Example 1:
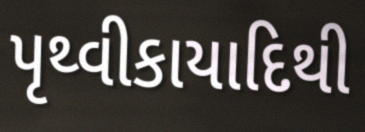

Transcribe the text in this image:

પૃથ્વીકાયાદિથી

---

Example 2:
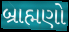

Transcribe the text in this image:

બ્રાહ્મણો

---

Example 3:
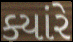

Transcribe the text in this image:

ક્યાંરે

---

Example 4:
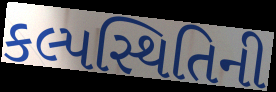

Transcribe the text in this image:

કલ્પસ્થિતિની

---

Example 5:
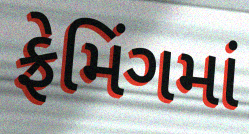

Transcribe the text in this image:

ફ્રેમિંગમાં